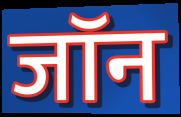
जॉन